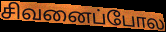
சிவனைப்போல